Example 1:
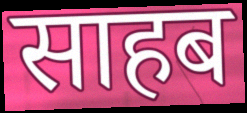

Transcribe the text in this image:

साहब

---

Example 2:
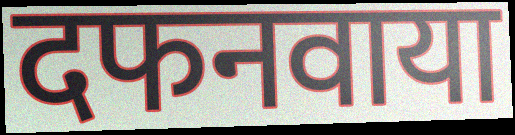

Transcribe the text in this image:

दफनवाया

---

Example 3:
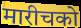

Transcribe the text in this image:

मारीचको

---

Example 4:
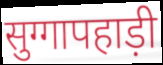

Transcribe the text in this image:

सुग्गापहाड़ी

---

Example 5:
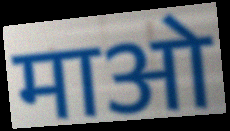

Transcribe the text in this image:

माओ